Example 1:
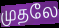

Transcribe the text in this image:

முதலே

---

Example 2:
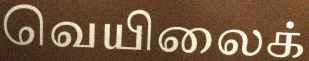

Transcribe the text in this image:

வெயிலைக்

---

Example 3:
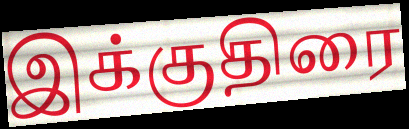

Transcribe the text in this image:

இக்குதிரை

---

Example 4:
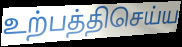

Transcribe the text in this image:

உற்பத்திசெய்ய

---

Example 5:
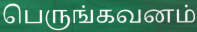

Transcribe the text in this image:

பெருங்கவனம்